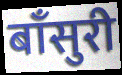
बाँसुरी